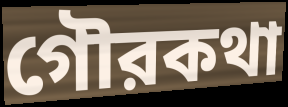
গৌরকথা